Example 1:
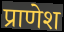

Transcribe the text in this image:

प्राणेश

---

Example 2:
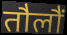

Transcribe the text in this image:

तौलौं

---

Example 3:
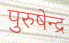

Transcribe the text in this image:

पुरुषेन्द्र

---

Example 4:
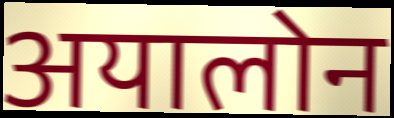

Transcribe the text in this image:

अयालोन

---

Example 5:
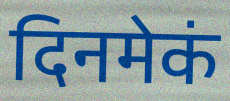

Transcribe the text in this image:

दिनमेकं